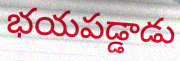
భయపడ్డాడు